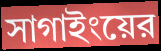
সাগাইংয়ের